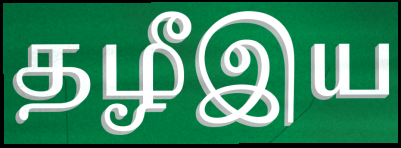
தழீஇய